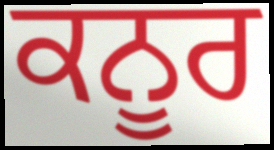
ਕਨੂਰ